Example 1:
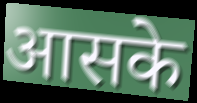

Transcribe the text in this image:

आसके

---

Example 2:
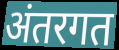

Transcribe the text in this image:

अंतरगत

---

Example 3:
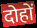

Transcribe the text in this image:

दोहों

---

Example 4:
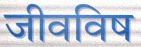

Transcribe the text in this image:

जीवविष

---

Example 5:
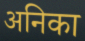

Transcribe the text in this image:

अनिका